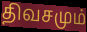
திவசமும்